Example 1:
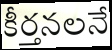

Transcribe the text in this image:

కీర్తనలనే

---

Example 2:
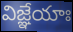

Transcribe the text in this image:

విజ్ఞేయాః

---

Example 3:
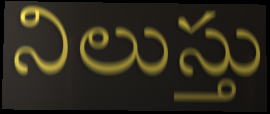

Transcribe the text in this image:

నిలుస్తు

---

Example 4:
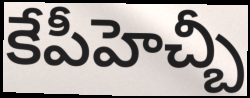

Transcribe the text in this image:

కేపీహెచ్బీ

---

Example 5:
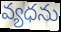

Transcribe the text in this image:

వ్యధను